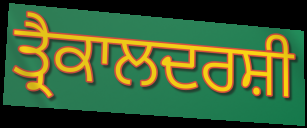
ਤ੍ਰੈਕਾਲਦਰਸ਼ੀ